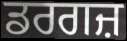
ਡਰਗਜ਼